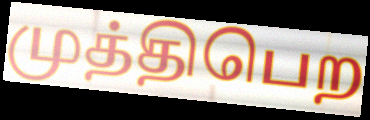
முத்திபெற